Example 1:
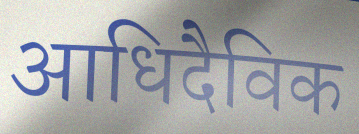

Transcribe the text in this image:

आधिदैविक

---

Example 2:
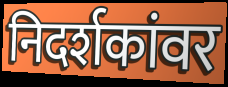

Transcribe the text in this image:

निदर्शकांवर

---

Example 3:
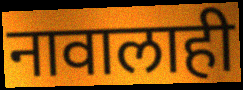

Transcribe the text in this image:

नावालाही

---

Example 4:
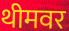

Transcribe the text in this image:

थीमवर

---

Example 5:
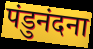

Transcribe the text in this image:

पंडुनंदना